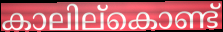
കാലില്കൊണ്ട്